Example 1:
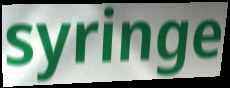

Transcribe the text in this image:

syringe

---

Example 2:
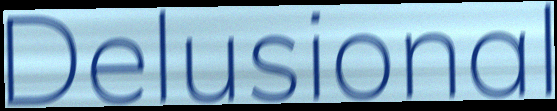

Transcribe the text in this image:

Delusional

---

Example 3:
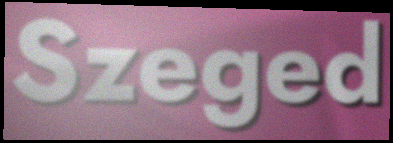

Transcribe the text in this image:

Szeged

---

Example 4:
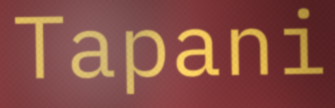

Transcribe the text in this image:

Tapani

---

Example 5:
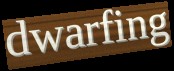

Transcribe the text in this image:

dwarfing